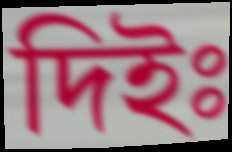
দিইঃ